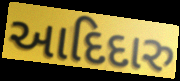
આદિદારુ